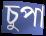
চুপা